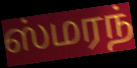
ஸ்மரந்